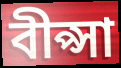
বীপ্সা